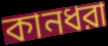
কানধরা